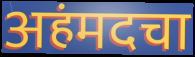
अहंमदचा